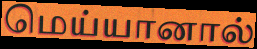
மெய்யானால்